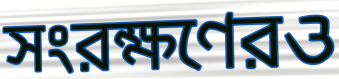
সংরক্ষণেরও